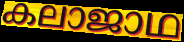
കലാജാഥ